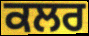
ਕਲਰ